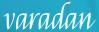
varadan